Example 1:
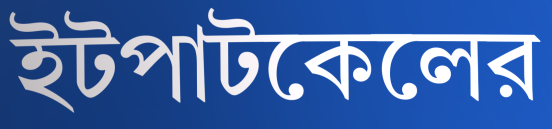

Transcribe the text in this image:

ইটপাটকেলের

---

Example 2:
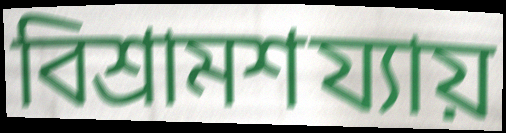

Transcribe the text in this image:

বিশ্রামশয্যায়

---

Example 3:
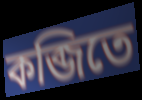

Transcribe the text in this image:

কব্জিতে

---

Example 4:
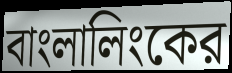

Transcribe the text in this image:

বাংলালিংকের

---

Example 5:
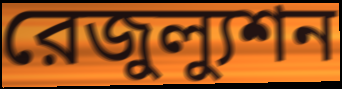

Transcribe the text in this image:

রেজুল্যুশন